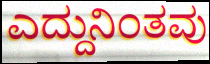
ಎದ್ದುನಿಂತವು